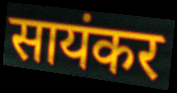
सायंकर